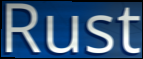
Rust